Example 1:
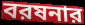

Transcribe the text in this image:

বরষনার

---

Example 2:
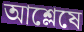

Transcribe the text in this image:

আশ্লেষে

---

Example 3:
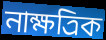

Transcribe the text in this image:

নাক্ষত্রিক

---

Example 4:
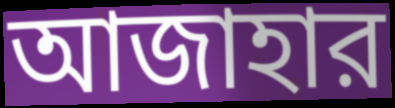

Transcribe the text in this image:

আজাহার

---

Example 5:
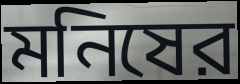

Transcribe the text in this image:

মনিষের